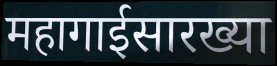
महागाईसारख्या